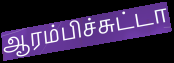
ஆரம்பிச்சுட்டா